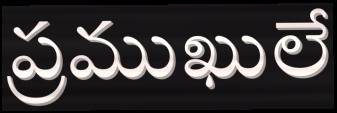
ప్రముఖులే